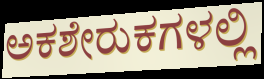
ಅಕಶೇರುಕಗಳಲ್ಲಿ